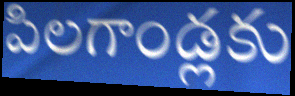
పిలగాండ్లకు